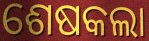
ଶେଷକଲା